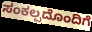
ಸಂಕಲ್ಪದೊಂದಿಗೆ